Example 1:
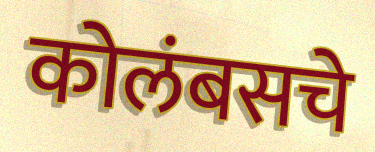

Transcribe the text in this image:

कोलंबसचे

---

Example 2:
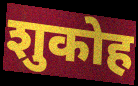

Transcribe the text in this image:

शुकोह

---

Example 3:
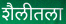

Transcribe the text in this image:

शैलीतला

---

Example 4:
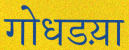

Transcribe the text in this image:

गोधडय़ा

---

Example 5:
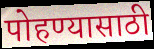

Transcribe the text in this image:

पोहण्यासाठी